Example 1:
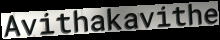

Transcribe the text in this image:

Avithakavithe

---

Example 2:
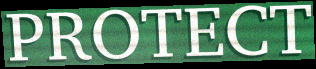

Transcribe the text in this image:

PROTECT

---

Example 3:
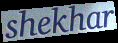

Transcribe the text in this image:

shekhar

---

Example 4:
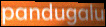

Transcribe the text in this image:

pandugalu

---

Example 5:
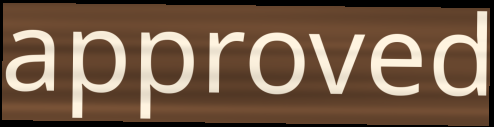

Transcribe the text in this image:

approved